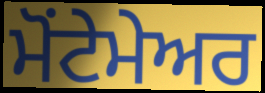
ਮੋਂਟੇਮੇਅਰ